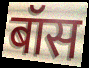
बॉस